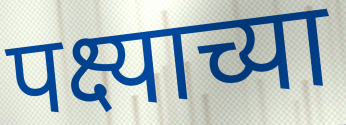
पक्ष्याच्या